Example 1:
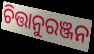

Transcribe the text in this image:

ଚିତ୍ତାନୁରଞ୍ଜନ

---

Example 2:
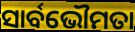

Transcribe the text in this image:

ସାର୍ବଭୌମତା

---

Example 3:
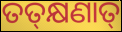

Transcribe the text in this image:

ତତ୍‍କ୍ଷଣାତ୍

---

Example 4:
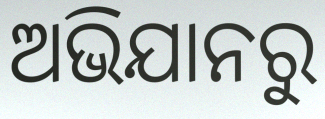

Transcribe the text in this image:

ଅଭିଯାନରୁ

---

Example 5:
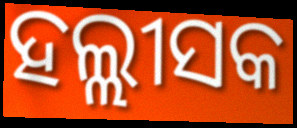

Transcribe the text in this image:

ହଲ୍ଲୀସକ